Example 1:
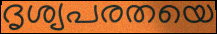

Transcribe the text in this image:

ദൃശ്യപരതയെ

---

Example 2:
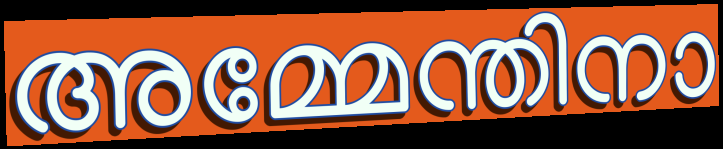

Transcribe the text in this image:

അമ്മേന്തിനാ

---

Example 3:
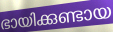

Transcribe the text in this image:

ഭായിക്കുണ്ടായ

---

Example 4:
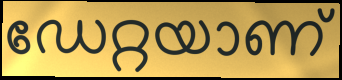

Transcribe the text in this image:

ഡേറ്റയാണ്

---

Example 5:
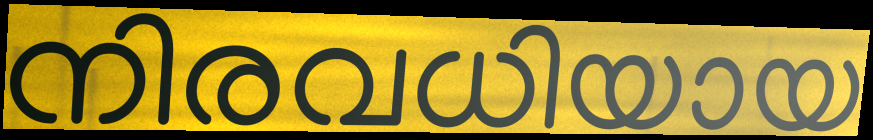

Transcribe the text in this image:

നിരവധിയായ